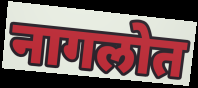
नागलोत